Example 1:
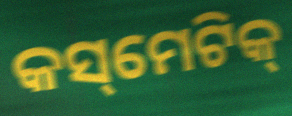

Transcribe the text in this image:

କସ୍‌ମେଟିକ୍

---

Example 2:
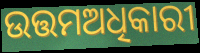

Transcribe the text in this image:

ଉତ୍ତମଅଧିକାରୀ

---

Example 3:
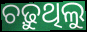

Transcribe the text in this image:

ଚଢ଼ୁଥିଲୁ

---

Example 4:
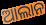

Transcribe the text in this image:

ଆଲାନ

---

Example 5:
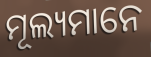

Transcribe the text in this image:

ମୂଲ୍ୟମାନେ